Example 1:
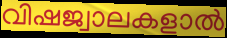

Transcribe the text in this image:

വിഷജ്വാലകളാൽ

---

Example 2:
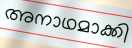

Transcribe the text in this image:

അനാഥമാക്കി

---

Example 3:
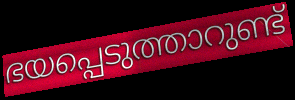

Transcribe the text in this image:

ഭയപ്പെടുത്താറുണ്ട്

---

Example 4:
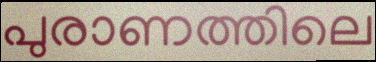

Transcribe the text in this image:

പുരാണത്തിലെ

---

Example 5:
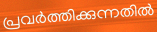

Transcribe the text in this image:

പ്രവർത്തിക്കുന്നതിൽ